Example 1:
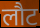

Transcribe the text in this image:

लौट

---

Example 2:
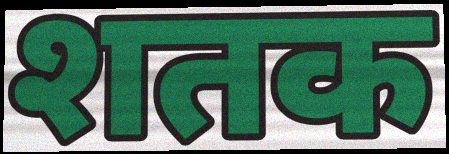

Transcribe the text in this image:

शतक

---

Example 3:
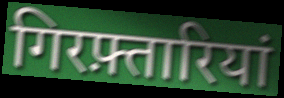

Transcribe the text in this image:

गिरफ़्तारियां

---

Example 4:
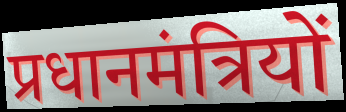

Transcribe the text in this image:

प्रधानमंत्रियों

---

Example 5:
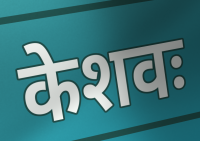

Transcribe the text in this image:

केशवः